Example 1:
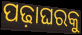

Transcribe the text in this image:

ପଢ଼ାଘରକୁ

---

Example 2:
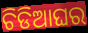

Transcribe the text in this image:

ଚିଡିଆଘର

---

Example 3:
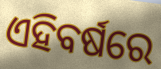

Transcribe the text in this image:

ଏହିବର୍ଷରେ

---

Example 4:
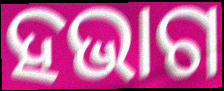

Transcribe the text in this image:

ହଭାଗ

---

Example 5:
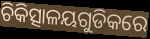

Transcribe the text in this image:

ଚିକିତ୍ସାଳୟଗୁଡିକରେ